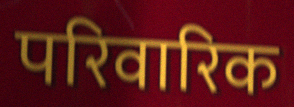
परिवारिक